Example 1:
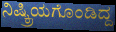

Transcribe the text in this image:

ನಿಷ್ಕ್ರಿಯಗೊಂಡಿದ್ದ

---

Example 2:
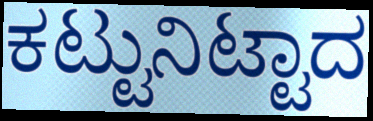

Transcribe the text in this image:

ಕಟ್ಟುನಿಟ್ಟಾದ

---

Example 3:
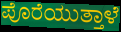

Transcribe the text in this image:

ಪೊರೆಯುತ್ತಾಳೆ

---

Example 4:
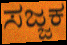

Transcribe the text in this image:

ಸಜ್ಜಕ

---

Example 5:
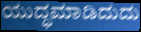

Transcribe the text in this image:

ಯುದ್ಧಮಾಡಿದುದು